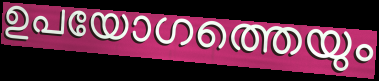
ഉപയോഗത്തെയും